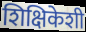
शिक्षिकेशी